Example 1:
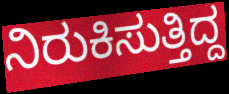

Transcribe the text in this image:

ನಿರುಕಿಸುತ್ತಿದ್ದ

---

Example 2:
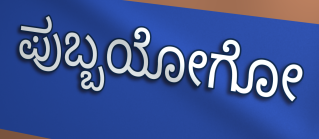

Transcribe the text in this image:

ಪುಬ್ಬಯೋಗೋ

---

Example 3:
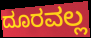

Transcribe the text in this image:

ದೂರವಲ್ಲ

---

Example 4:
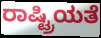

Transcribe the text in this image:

ರಾಷ್ಟ್ರಿಯತೆ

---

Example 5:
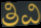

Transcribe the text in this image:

ತಿವಿ